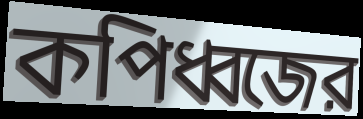
কপিধ্বজের